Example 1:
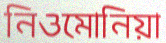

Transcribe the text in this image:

নিওমোনিয়া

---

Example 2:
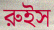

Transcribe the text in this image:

রুইস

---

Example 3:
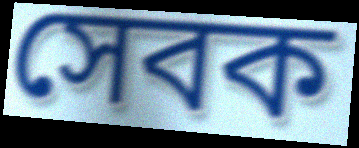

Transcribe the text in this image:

সেবক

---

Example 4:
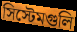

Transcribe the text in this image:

সিস্টেমগুলি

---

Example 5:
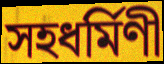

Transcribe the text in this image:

সহধর্মিণী